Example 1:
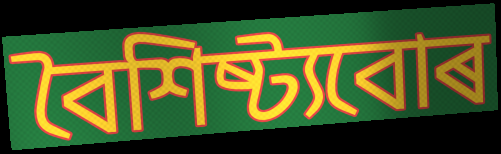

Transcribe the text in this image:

বৈশিষ্ট্যবোৰ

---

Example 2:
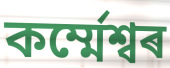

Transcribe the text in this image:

কৰ্ম্মেশ্বৰ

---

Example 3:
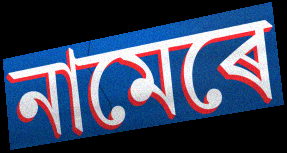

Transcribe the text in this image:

নামেৰে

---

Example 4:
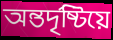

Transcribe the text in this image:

অন্তৰ্দৃষ্টিয়ে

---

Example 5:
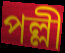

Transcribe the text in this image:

পল্লী